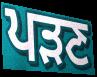
ਪੜਣ